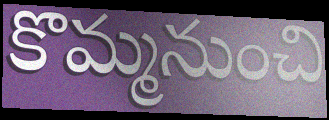
కొమ్మనుంచి